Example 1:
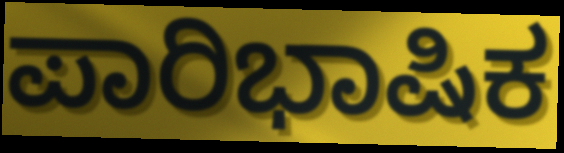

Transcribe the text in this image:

ಪಾರಿಭಾಷಿಕ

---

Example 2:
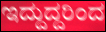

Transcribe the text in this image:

ಇದ್ದುದ್ದರಿಂದ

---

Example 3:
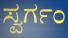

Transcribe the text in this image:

ಸ್ವರ್ಗಂ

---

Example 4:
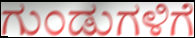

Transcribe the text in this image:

ಗುಂಡುಗಳಿಗೆ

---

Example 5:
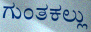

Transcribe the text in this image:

ಗುಂತಕಲ್ಲು